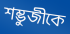
শম্ভুজীকে